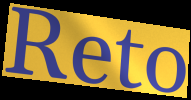
Reto